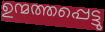
ഉന്മത്തപ്പെട്ടു